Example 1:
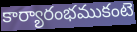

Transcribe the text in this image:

కార్యారంభముకంటె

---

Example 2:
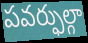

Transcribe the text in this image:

పవర్ఫుల్గా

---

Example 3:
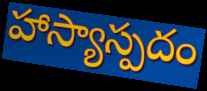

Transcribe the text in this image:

హాస్యాస్పదం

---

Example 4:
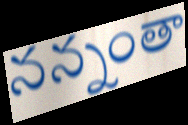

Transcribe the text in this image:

నన్నంతా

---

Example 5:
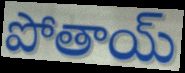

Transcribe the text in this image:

పోతాయ్